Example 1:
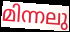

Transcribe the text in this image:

മിന്നലു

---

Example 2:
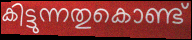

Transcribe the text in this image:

കിട്ടുന്നതുകൊണ്ട്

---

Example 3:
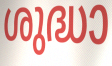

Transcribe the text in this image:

ശുദ്ധാ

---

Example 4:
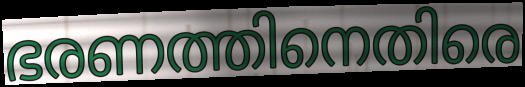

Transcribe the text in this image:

ഭരണത്തിനെതിരെ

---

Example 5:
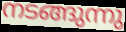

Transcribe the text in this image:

നടങ്ങുന്നു